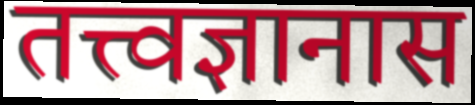
तत्त्वज्ञानास